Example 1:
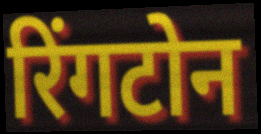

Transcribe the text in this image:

रिंगटोन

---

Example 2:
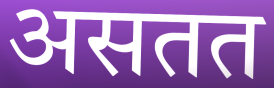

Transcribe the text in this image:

असतत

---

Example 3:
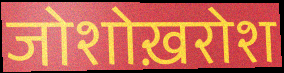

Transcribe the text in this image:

जोशोख़रोश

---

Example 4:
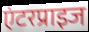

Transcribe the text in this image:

एंटरप्राइज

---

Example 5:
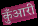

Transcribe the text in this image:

कुँआरी